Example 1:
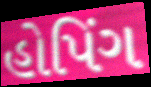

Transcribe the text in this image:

હોપિંગ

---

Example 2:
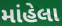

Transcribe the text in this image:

માંહેલા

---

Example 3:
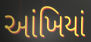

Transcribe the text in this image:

આંખિયાં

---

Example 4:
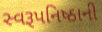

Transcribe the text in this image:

સ્વરૂપનિષ્ઠાની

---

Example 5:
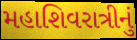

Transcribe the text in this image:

મહાશિવરાત્રીનું